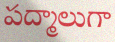
పద్మాలుగా